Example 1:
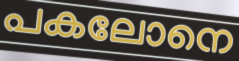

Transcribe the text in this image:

പകലോനെ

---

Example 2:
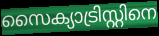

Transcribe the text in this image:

സൈക്യാട്രിസ്റ്റിനെ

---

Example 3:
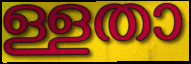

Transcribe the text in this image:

ള്ളതാ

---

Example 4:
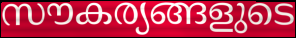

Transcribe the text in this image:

സൗകര്യങ്ങളുടെ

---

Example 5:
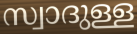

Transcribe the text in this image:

സ്വാദുള്ള